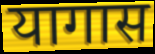
यागास